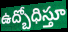
ఉద్బోధిస్తూ